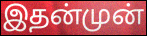
இதன்முன்